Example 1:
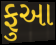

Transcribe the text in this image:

ફુઆ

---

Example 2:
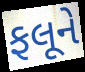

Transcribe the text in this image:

ફલૂને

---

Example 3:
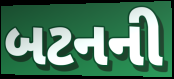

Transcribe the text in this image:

બટનની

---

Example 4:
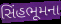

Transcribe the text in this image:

સિંહભૂમના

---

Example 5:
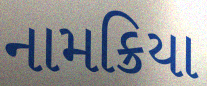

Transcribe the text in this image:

નામક્રિયા